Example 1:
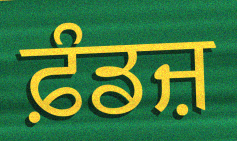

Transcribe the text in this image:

ਫ਼ੰਡਜ਼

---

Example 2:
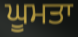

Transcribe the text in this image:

ਘੂਮਤਾ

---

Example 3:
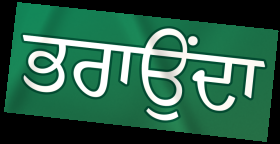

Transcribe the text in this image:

ਭਰਾਉਂਦਾ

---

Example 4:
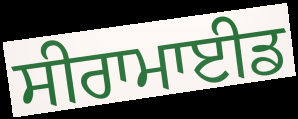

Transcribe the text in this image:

ਸੀਰਾਮਾਈਡ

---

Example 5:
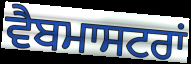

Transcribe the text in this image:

ਵੈਬਮਾਸਟਰਾਂ